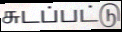
சுடப்பட்டு